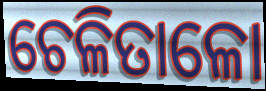
ଚେଳିତାଳୋ